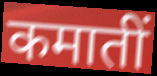
कमातीं